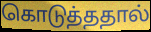
கொடுத்ததால்